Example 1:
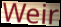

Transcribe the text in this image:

Weir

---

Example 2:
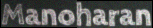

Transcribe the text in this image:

Manoharan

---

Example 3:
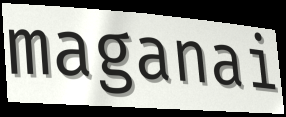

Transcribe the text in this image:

maganai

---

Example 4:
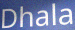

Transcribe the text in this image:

Dhala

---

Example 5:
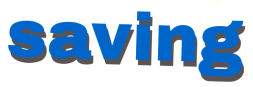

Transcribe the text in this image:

saving